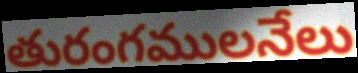
తురంగములనేలు